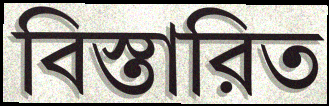
বিস্তারিত